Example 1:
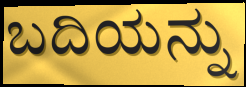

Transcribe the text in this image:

ಬದಿಯನ್ನು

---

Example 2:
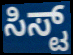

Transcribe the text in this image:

ಸಿಸ್ಟ್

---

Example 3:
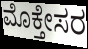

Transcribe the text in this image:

ಮೊಕ್ತೇಸರ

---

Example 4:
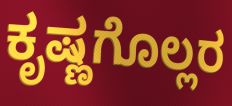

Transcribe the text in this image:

ಕೃಷ್ಣಗೊಲ್ಲರ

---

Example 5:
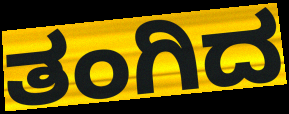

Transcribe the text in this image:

ತಂಗಿದ